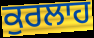
ਕੁਰਲਾਹ